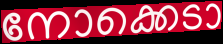
നോക്കെടാ